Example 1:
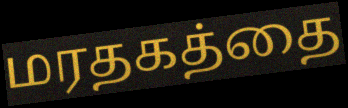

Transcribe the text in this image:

மரதகத்தை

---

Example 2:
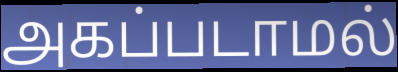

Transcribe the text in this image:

அகப்படாமல்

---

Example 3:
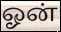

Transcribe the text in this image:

ஓன்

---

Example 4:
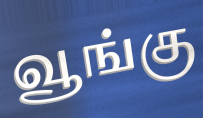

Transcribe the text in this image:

வூங்கு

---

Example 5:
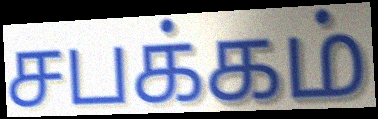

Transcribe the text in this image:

சபக்கம்